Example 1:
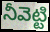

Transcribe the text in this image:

నీవెట్టి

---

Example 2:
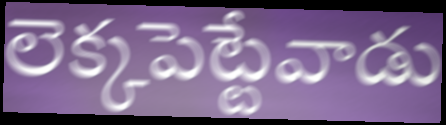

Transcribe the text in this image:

లెక్కపెట్టేవాడు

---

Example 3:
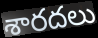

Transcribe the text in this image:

శారదలు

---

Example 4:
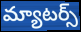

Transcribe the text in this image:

మ్యాటర్స్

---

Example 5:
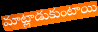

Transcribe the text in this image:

మాట్లాడుకుంటాయి